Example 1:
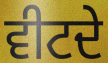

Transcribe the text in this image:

ਵੀਟਦੇ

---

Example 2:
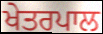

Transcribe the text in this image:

ਖੇਤਰਪਾਲ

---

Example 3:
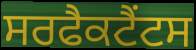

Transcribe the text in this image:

ਸਰਫੈਕਟੈਂਟਸ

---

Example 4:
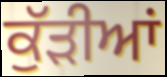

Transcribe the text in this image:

ਕੁੱੜੀਆਂ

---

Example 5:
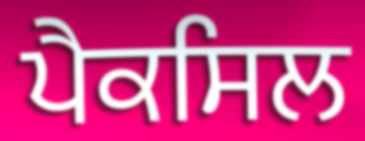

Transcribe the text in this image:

ਪੈਕਸਿਲ